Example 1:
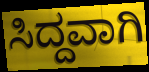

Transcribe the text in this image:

ಸಿದ್ದವಾಗಿ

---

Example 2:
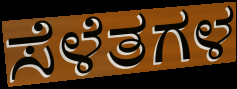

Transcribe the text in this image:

ಸೆಳೆತಗಳ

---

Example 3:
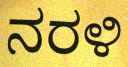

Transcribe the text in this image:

ನರಳಿ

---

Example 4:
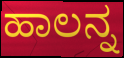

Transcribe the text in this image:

ಹಾಲನ್ನ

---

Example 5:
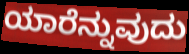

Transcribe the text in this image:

ಯಾರೆನ್ನುವುದು